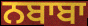
ਨਬਾਬਾ